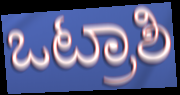
ಒಟ್ರಾಶಿ